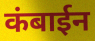
कंबाईन